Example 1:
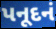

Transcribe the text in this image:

પનૂદનં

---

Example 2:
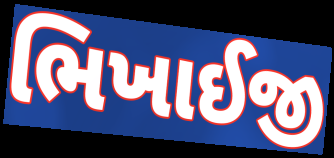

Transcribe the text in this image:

ભિખાઈજી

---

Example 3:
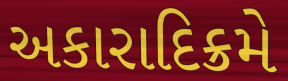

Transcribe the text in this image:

અકારાદિક્રમે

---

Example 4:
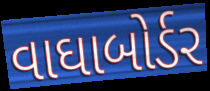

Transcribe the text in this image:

વાઘાબોર્ડર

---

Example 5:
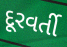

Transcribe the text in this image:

દૂરવર્તી